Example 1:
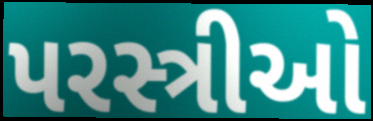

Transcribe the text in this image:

પરસ્ત્રીઓ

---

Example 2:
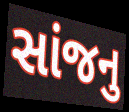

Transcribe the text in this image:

સાંજનુ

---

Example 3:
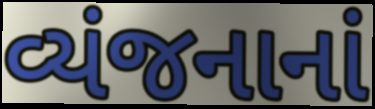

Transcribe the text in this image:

વ્યંજનાનાં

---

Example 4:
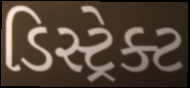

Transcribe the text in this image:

ડિસ્ટ્રેક્ટ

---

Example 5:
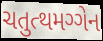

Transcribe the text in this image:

ચતુત્થમગ્ગેન